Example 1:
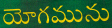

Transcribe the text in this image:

యోగమును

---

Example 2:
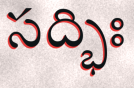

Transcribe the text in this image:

సద్భిః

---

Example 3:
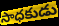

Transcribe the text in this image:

సాధకుడు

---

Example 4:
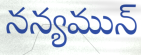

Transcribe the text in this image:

నన్యమున్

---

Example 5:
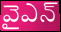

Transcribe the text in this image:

వైఎన్